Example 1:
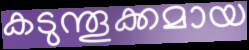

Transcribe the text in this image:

കടുന്തൂക്കമായ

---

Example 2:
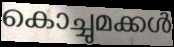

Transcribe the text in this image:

കൊച്ചുമക്കൾ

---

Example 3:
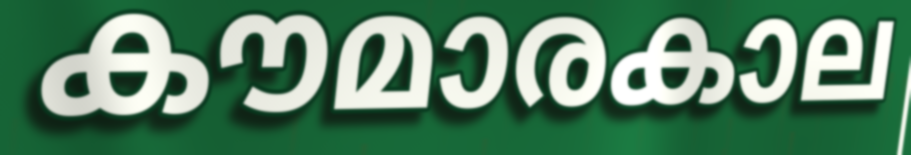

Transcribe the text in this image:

കൗമാരകാല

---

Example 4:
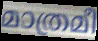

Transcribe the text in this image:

മാത്രമീ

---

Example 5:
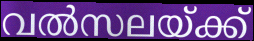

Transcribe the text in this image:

വൽസലയ്ക്ക്